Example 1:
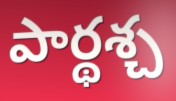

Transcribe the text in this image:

పార్థశ్చ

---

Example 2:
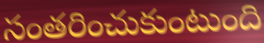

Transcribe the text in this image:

సంతరించుకుంటుంది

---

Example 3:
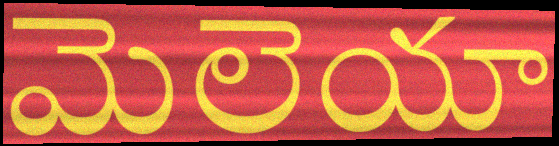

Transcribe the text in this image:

మెలెయా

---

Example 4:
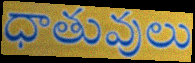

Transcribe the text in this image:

ధాతువులు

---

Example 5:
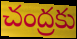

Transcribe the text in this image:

చంద్రకు